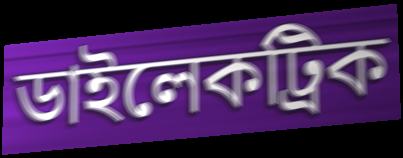
ডাইলেকট্রিক